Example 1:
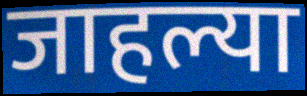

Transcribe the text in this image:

जाहल्या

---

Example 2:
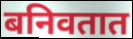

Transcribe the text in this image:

बनिवतात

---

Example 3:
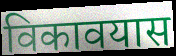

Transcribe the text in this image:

विकावयास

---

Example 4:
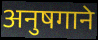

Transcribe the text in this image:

अनुषगाने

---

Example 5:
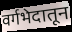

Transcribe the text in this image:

वर्गभेदातून